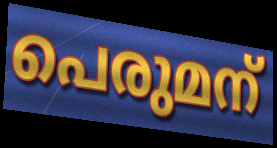
പെരുമന്